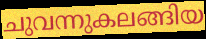
ചുവന്നുകലങ്ങിയ